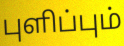
புளிப்பும்